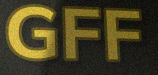
GFF